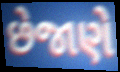
છેજાણે